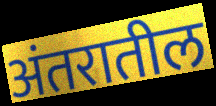
अंतरातील